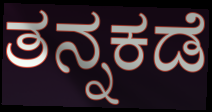
ತನ್ನಕಡೆ